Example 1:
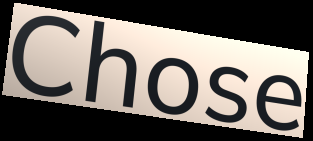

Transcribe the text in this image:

Chose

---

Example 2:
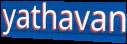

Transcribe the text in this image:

yathavan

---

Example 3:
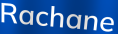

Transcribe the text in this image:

Rachane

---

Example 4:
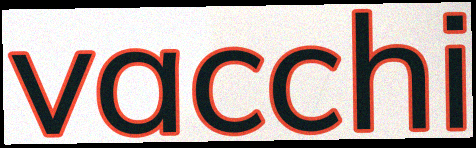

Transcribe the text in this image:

vacchi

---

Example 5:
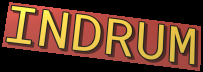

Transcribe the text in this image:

INDRUM